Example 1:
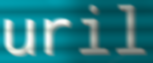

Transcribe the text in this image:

uril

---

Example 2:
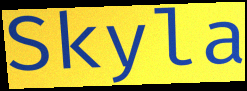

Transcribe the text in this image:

Skyla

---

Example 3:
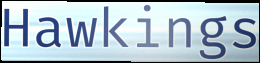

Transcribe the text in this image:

Hawkings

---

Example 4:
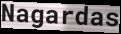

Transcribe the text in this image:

Nagardas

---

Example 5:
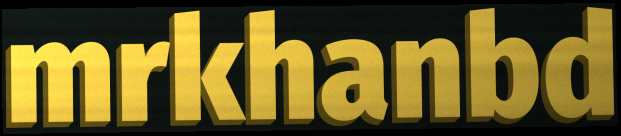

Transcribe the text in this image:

mrkhanbd